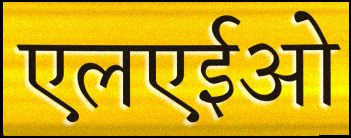
एलएईओ